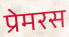
प्रेमरस